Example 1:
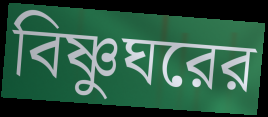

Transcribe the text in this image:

বিষ্ণুঘরের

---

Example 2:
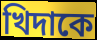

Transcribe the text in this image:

খিদাকে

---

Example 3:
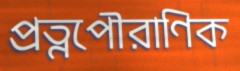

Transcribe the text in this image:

প্রত্নপৌরাণিক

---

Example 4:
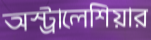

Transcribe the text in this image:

অস্ট্রালেশিয়ার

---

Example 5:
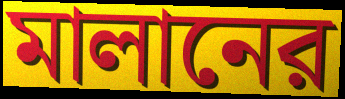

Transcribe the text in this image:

মালানের